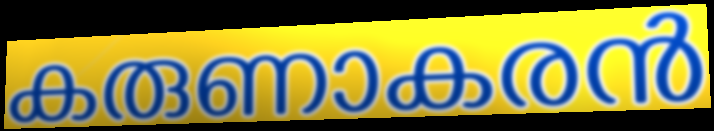
കരുണാകരൻ